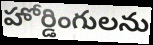
హోర్డింగులను